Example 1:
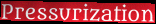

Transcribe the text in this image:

Pressurization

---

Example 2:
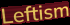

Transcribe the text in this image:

Leftism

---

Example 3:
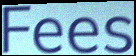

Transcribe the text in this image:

Fees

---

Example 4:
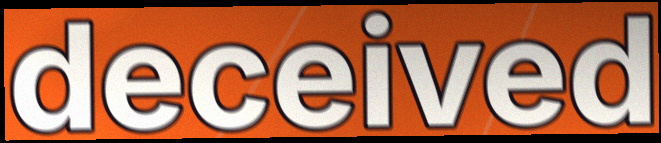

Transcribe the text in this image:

deceived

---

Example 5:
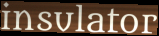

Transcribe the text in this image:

insulator